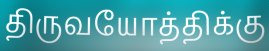
திருவயோத்திக்கு